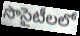
సొసైటీలలో